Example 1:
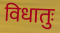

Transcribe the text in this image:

विधातुः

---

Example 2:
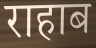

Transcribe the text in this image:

राहाब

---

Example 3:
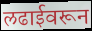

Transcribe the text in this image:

लढाईवरून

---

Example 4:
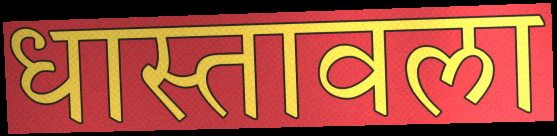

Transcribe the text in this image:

धास्तावला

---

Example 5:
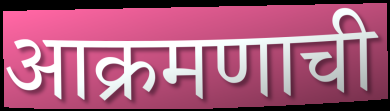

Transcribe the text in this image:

आक्रमणाची